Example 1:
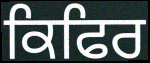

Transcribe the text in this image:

ਕਿਫਿਰ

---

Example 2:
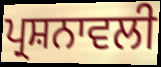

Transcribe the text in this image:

ਪ੍ਰਸ਼ਨਾਵਲੀ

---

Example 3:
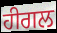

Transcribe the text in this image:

ਹੀਗਲ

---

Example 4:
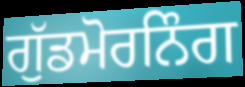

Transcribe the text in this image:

ਗੁੱਡਮੋਰਨਿੰਗ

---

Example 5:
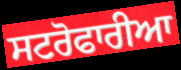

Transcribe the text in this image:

ਸਟਰੋਫਾਰੀਆ